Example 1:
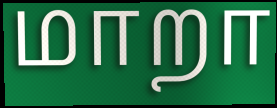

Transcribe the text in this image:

மாறா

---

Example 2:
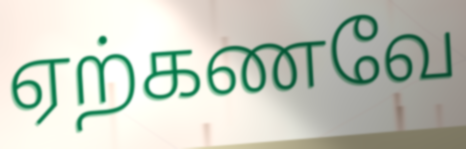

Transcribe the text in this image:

ஏற்கணவே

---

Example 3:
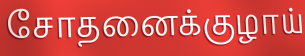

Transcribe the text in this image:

சோதனைக்குழாய்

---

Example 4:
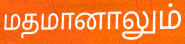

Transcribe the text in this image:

மதமானாலும்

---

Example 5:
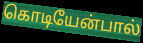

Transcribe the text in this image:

கொடியேன்பால்